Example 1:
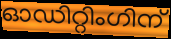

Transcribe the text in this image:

ഓഡിറ്റിംഗിന്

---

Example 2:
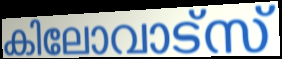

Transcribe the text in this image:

കിലോവാട്സ്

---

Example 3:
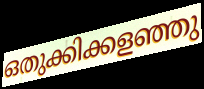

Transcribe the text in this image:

ഒതുക്കിക്കളഞ്ഞു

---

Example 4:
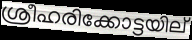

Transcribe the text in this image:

ശ്രീഹരിക്കോട്ടയില്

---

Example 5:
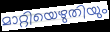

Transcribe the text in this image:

മാറ്റിയെഴുതിയും